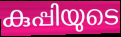
കുപ്പിയുടെ